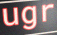
ugr